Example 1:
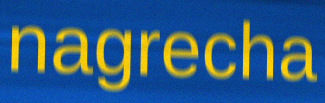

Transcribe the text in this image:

nagrecha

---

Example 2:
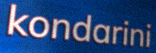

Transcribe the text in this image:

kondarini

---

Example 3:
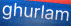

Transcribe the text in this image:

ghurlam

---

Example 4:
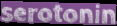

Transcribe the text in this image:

serotonin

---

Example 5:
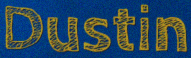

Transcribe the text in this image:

Dustin